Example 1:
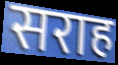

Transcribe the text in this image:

सराह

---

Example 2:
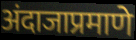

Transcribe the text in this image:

अंदाजाप्रमाणे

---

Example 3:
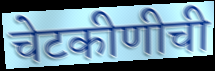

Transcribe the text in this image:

चेटकीणीची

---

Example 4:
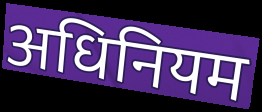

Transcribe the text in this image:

अधिनियम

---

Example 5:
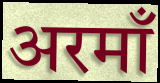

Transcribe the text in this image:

अरमाँ